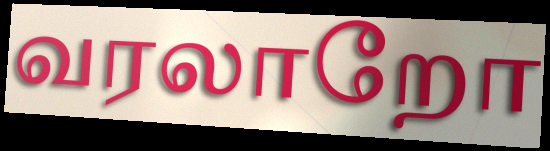
வரலாறோ